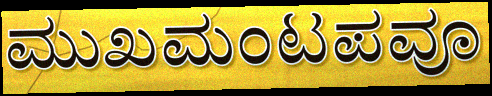
ಮುಖಮಂಟಪವೂ